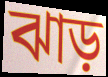
ঝাড়